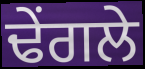
ਢੇਂਗਲੇ